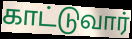
காட்டுவார்